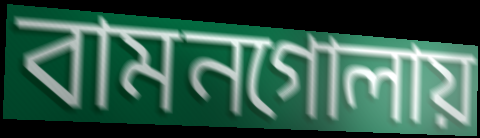
বামনগোলায়